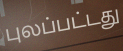
புலப்பட்டது